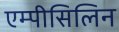
एम्पीसिलिन